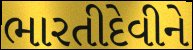
ભારતીદેવીને